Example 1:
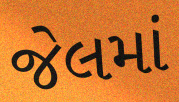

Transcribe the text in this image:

જેલમાં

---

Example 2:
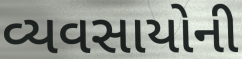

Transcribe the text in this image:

વ્યવસાયોની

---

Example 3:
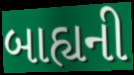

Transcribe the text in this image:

બાહ્યની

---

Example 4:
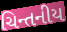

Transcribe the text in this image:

ચિન્તનીય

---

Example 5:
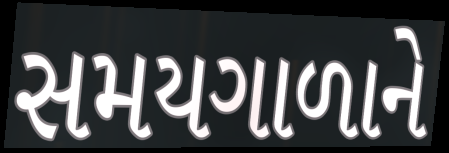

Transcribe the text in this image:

સમયગાળાને